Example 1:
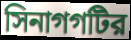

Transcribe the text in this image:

সিনাগগটির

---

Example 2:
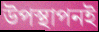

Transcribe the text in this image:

উপস্থাপনই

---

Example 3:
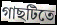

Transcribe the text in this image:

গাছটিতে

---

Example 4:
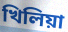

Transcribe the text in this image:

খিলিয়া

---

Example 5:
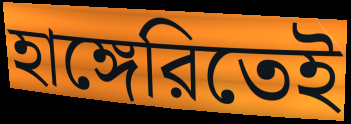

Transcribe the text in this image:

হাঙ্গেরিতেই